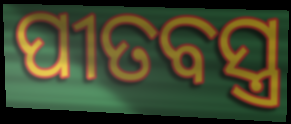
ପୀତବସ୍ତ୍ର